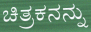
ಚಿತ್ರಕನನ್ನು